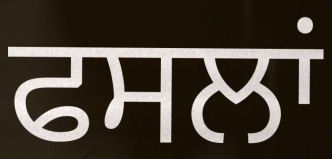
ਫਸਲਾਂ